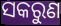
ସକରୁଣ